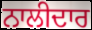
ਨਾਲੀਦਾਰ